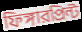
ফিঙ্গারপ্রিন্ট